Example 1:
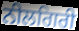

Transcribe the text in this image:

ਨੀਲਗਿਰੀ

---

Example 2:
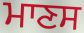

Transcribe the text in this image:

ਮਾਣਸ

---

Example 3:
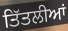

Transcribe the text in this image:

ਤਿੱਤਲੀਆਂ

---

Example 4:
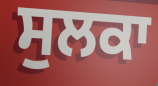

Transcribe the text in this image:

ਸੁਲਕਾ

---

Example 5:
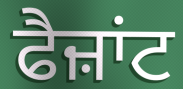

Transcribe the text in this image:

ਫੈਜ਼ਾਂਟ